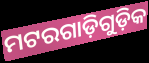
ମଟରଗାଡ଼ିଗୁଡ଼ିକ